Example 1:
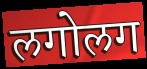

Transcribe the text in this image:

लगोलग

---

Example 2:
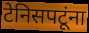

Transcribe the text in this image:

टेनिसपटूंना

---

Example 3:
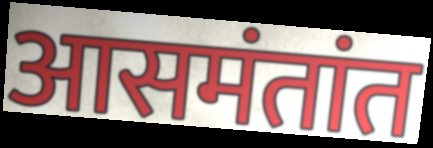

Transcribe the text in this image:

आसमंतांत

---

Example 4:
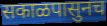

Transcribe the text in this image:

सकाळपासुनच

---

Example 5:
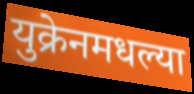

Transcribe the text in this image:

युक्रेनमधल्या